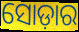
ସୋଡ଼ାର